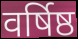
वर्षिष्ठ